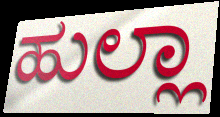
ಹುಲ್ಲಾ